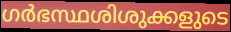
ഗർഭസ്ഥശിശുക്കളുടെ